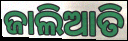
ଜାଲିଆତି